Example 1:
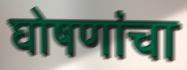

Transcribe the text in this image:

घोषणांचा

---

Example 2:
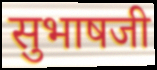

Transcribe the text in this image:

सुभाषजी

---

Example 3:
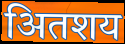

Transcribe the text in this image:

अितशय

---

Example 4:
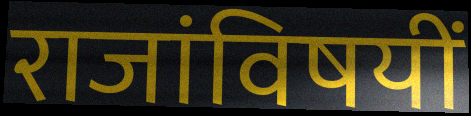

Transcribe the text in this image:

राजांविषयीं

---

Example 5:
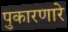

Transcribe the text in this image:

पुकारणारे